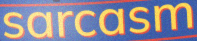
sarcasm